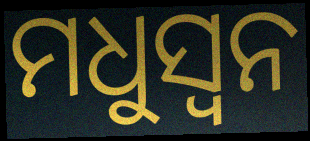
ମଧୁସ୍ୱନ